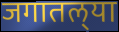
जगातल्या